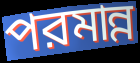
পরমান্ন